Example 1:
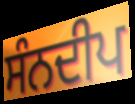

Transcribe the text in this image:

ਸੰਨਦੀਪ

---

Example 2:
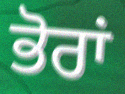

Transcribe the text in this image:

ਭੋਰਾਂ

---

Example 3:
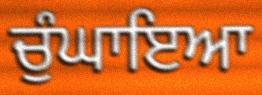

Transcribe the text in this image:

ਚੁੰਘਾਇਆ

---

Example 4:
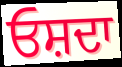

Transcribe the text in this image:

ਓਸ਼ਦਾ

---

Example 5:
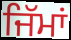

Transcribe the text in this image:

ਜਿੱਮਾਂ